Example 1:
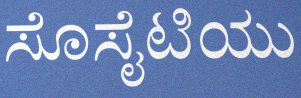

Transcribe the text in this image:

ಸೊಸೈಟಿಯು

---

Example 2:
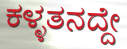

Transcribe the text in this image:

ಕಳ್ಳತನದ್ದೇ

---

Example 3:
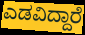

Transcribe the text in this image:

ಎಡವಿದ್ದಾರೆ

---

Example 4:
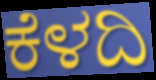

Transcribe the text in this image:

ಕೆಳದಿ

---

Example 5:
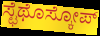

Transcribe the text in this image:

ಸ್ಟೆಥೊಸ್ಕೋಪ್